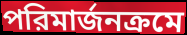
পরিমার্জনক্রমে